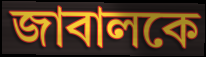
জাবালকে